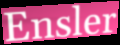
Ensler